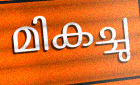
മികച്ചു